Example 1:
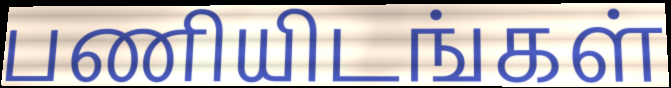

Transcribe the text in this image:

பணியிடங்கள்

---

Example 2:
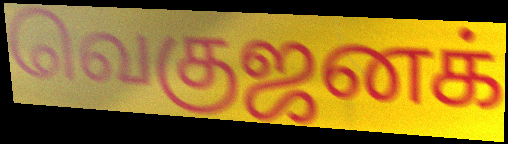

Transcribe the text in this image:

வெகுஜனக்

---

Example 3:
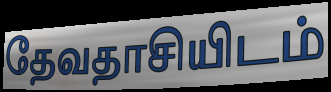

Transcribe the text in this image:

தேவதாசியிடம்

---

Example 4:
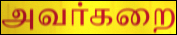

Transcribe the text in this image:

அவர்கறை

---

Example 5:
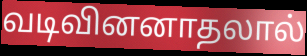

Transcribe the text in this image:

வடிவினனாதலால்